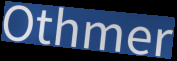
Othmer